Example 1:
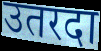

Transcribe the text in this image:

उतरदा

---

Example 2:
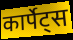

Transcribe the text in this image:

कार्पेट्स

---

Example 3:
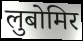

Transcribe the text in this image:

लुबोमिर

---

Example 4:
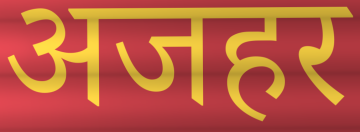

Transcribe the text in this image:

अजहर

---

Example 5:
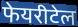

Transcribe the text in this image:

फेयरीटेल